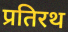
प्रतिरथ